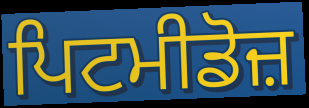
ਪਿਟਮੀਡੋਜ਼